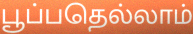
பூப்பதெல்லாம்